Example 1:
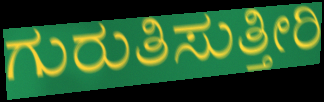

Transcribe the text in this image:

ಗುರುತಿಸುತ್ತೀರಿ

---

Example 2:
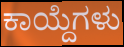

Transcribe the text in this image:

ಕಾಯ್ದೆಗಳು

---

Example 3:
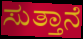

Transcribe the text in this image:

ಸುತ್ತಾನೆ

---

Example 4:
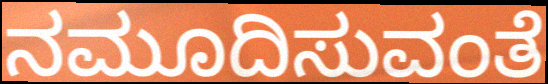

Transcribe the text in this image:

ನಮೂದಿಸುವಂತೆ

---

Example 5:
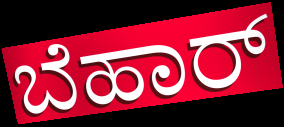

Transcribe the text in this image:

ಬೆಹಾರ್